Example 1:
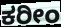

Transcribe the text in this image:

ಕರೀಂ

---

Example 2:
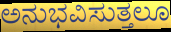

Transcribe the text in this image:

ಅನುಭವಿಸುತ್ತಲೂ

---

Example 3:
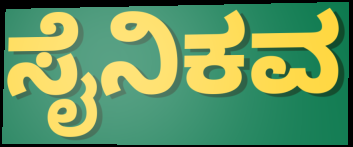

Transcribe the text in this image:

ಸೈನಿಕವ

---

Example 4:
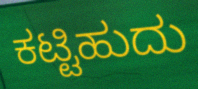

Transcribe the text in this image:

ಕಟ್ಟಿಹುದು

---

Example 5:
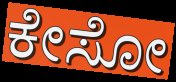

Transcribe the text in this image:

ಕೇಸೋ